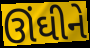
ઊંઘીને